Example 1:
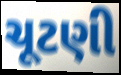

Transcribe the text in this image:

ચૂટણી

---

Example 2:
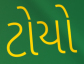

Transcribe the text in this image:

ટોયો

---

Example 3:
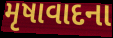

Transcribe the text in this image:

મૃષાવાદના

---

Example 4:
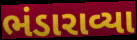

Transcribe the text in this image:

ભંડારાવ્યા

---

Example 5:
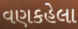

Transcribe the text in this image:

વણકહેલા